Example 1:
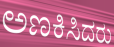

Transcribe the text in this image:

ಅಣಕಿಸಿದರು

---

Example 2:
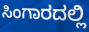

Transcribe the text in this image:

ಸಿಂಗಾರದಲ್ಲಿ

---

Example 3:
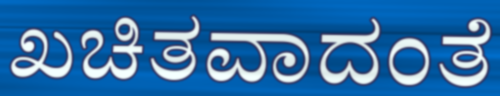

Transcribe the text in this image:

ಖಚಿತವಾದಂತೆ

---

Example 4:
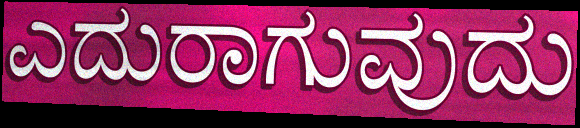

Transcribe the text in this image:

ಎದುರಾಗುವುದು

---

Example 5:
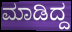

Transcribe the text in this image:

ಮಾಡಿದ್ದ